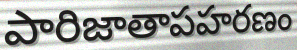
పారిజాతాపహరణం